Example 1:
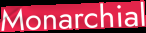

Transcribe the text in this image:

Monarchial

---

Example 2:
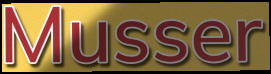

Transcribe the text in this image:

Musser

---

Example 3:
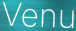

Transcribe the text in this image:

Venu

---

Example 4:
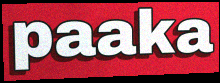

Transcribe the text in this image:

paaka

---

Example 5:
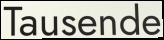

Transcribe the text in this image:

Tausende